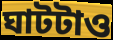
ঘাটটাও